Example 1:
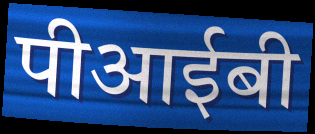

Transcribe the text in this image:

पीआईबी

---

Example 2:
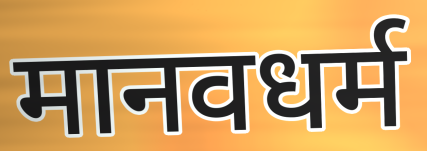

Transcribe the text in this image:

मानवधर्म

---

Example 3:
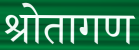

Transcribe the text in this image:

श्रोतागण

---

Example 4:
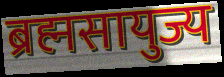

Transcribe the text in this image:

ब्रह्मसायुज्य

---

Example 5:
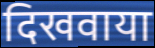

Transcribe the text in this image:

दिखवाया